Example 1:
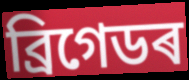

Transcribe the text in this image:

ব্ৰিগেডৰ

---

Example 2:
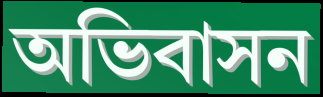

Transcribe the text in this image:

অভিবাসন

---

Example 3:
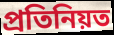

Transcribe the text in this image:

প্ৰতিনিয়ত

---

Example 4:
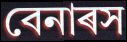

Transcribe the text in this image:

বেনাৰস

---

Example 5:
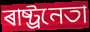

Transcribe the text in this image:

ৰাষ্ট্ৰনেতা